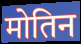
मोतिन